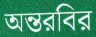
অন্তরবির